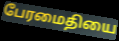
பேரமைதியை